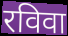
रविवा